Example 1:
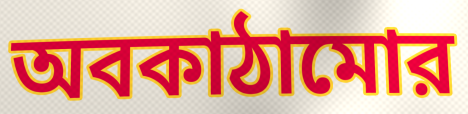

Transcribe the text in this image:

অবকাঠামোর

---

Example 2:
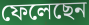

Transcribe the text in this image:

ফেলেছেন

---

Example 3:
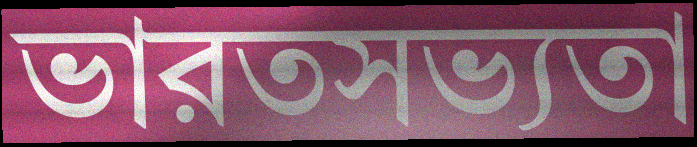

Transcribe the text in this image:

ভারতসভ্যতা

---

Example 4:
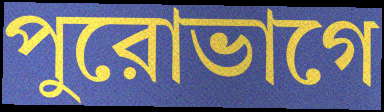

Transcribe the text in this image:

পুরোভাগে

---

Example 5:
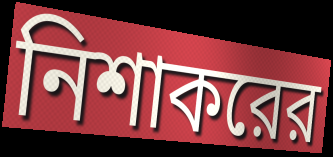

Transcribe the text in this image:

নিশাকরের